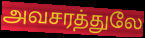
அவசரத்துலே